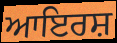
ਆਇਰਸ਼